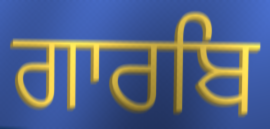
ਗਾਰਬਿ